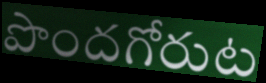
పొందగోరుట